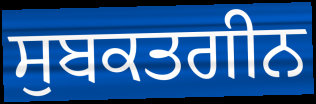
ਸੁਬਕਤਗੀਨ